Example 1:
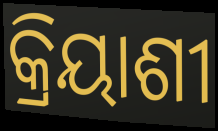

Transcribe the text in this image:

କ୍ରିୟାଶୀ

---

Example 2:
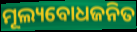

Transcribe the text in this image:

ମୂଲ୍ୟବୋଧଜନିତ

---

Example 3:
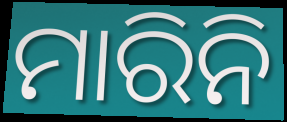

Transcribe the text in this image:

ମାରିନି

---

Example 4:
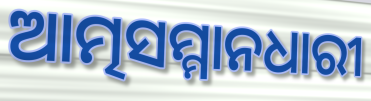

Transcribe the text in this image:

ଆତ୍ମସମ୍ମାନଧାରୀ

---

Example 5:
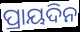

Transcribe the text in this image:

ପ୍ରାୟଦିନ